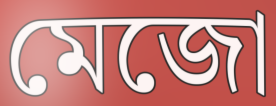
মেজো